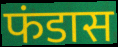
फंडास